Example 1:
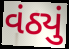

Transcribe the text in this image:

વંઠ્યું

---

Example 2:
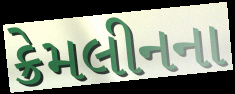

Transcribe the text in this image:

ક્રેમલીનના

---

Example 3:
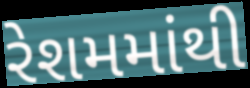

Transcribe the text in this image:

રેશમમાંથી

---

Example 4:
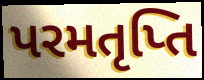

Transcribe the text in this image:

પરમતૃપ્તિ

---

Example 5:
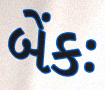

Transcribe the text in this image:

બેંકઃ